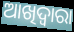
ଆଖିଦ୍ୱାରା